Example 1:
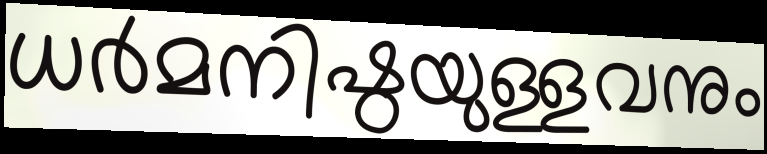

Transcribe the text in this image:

ധർമനിഷ്ഠയുള്ളവനും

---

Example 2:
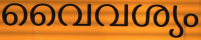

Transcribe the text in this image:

വൈവശ്യം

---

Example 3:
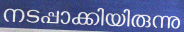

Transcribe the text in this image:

നടപ്പാക്കിയിരുന്നു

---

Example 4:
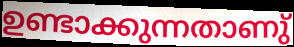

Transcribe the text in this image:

ഉണ്ടാക്കുന്നതാണു്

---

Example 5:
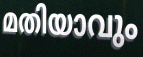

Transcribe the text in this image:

മതിയാവും